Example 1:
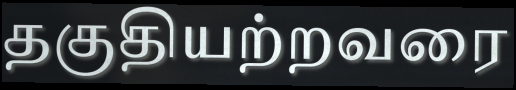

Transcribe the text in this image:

தகுதியற்றவரை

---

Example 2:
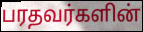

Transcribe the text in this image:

பரதவர்களின்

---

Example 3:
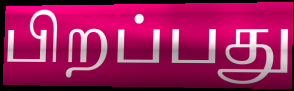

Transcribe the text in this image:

பிறப்பது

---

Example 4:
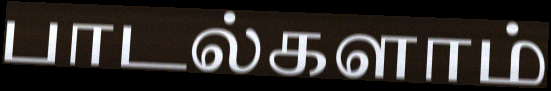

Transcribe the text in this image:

பாடல்களாம்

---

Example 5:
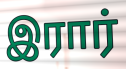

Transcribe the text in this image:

இரார்